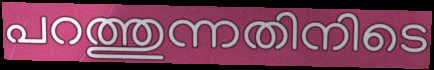
പറത്തുന്നതിനിടെ